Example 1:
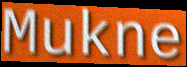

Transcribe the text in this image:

Mukne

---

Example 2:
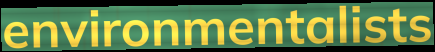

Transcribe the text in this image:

environmentalists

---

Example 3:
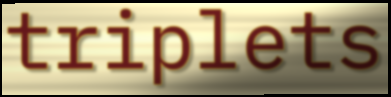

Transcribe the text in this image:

triplets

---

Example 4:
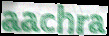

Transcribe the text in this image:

aachra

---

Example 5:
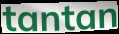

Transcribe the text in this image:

tantan